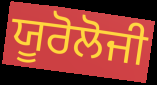
ਯੂਰੋਲੋਜੀ